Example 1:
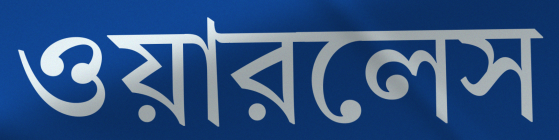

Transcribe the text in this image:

ওয়ারলেস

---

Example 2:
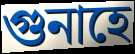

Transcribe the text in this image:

গুনাহে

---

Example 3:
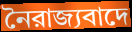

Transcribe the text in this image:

নৈরাজ্যবাদে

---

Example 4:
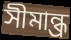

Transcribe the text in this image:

সীমান্ধ্র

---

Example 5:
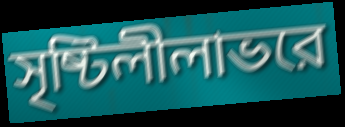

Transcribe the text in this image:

সৃষ্টিলীলাভরে